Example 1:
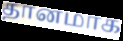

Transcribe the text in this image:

தானமாக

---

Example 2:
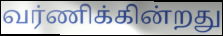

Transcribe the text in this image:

வர்ணிக்கின்றது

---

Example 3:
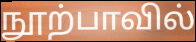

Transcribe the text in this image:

நூற்பாவில்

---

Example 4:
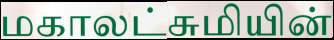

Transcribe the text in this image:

மகாலட்சுமியின்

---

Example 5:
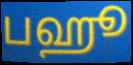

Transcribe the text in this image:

பஹூ